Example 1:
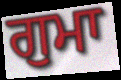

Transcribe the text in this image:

ਗੁਮਾ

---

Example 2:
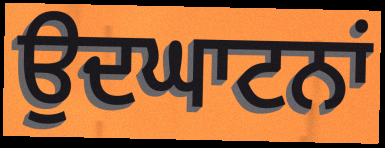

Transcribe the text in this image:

ਉਦਘਾਟਨਾਂ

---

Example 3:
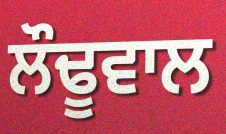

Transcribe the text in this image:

ਲੌਢੂਵਾਲ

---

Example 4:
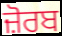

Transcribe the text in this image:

ਜ਼ੋਰਬ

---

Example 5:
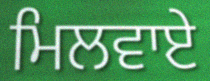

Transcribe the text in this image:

ਮਿਲਵਾਏ